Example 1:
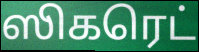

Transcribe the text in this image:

ஸிகரெட்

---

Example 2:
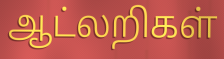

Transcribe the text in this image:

ஆட்லறிகள்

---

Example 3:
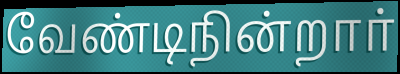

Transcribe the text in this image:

வேண்டிநின்றார்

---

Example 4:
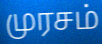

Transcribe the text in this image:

முரசம்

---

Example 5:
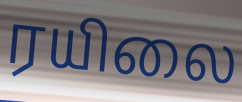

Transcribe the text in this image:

ரயிலை